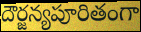
దౌర్జన్యపూరితంగా